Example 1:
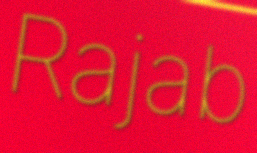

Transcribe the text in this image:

Rajab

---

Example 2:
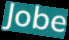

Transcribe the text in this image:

Jobe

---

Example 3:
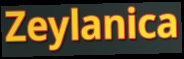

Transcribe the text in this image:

Zeylanica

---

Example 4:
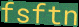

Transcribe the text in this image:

fsftn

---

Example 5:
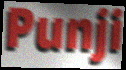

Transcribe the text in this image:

Punji